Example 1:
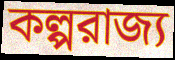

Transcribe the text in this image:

কল্পরাজ্য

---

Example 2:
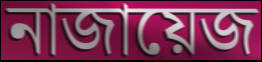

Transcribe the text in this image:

নাজায়েজ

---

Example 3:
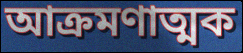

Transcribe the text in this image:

আক্রমণাত্মক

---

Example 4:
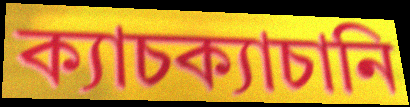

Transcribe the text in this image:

ক্যাচক্যাচানি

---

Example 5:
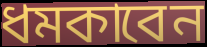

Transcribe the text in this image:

ধমকাবেন